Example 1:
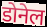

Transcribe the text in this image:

डोनेल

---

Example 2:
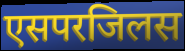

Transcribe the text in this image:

एसपरजिलस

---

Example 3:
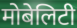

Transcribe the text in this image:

मोबेलिटी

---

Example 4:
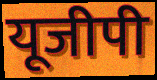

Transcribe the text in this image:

यूजीपी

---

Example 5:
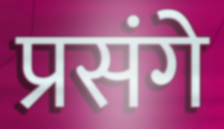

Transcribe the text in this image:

प्रसंगे